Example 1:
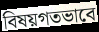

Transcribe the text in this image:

বিষয়গতভাবে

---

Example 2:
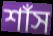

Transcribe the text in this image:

শাঁস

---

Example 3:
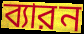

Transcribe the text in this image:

ব্যারন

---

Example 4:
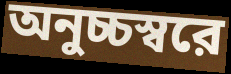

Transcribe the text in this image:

অনুচ্চস্বরে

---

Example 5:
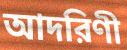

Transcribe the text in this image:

আদরিণী